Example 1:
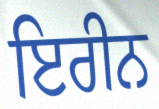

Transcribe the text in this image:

ਇਰੀਨ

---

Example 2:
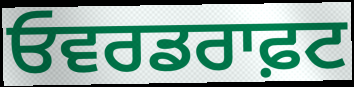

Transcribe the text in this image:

ਓਵਰਡਰਾਫ਼ਟ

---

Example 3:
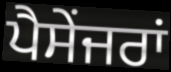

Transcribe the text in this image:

ਪੈਸੇਂਜਰਾਂ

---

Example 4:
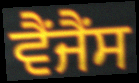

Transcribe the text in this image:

ਵੈਂਜੈਂਸ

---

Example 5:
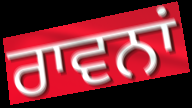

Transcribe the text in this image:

ਰਾਵਨਾਂ